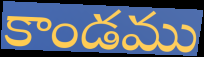
కాండము